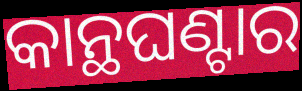
କାନ୍ଥଘଣ୍ଟାର